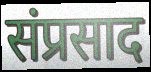
संप्रसाद